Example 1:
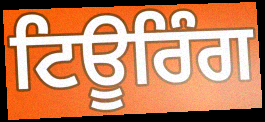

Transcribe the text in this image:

ਟਿਊਰਿੰਗ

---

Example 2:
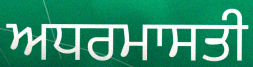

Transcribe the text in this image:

ਅਧਰਮਾਸਤੀ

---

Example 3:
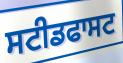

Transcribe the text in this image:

ਸਟੀਡਫਾਸਟ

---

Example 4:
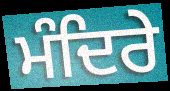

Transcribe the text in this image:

ਮੰਦਿਰੇ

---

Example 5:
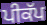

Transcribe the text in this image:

ਪੀਕੱਪ